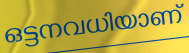
ഒട്ടനവധിയാണ്